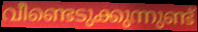
വീണ്ടെടുക്കുന്നുണ്ട്